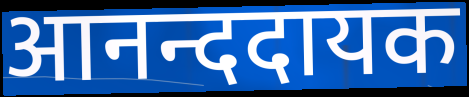
आनन्ददायक